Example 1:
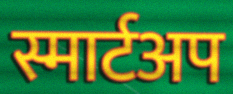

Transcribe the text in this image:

स्मार्टअप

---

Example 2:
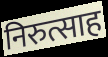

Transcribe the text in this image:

निरुत्साह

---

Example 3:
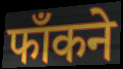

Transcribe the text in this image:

फाँकने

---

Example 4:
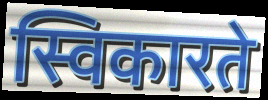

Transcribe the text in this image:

स्विकारते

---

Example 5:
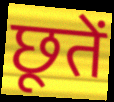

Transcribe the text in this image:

छूतें